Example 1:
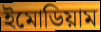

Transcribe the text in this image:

ইমোডিয়াম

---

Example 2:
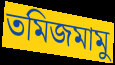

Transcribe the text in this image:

তমিজমামু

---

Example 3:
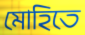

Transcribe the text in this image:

মোহিতে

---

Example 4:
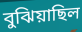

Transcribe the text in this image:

বুঝিয়াছিল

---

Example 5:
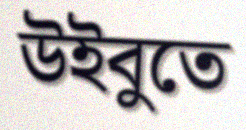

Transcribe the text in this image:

উইবুতে